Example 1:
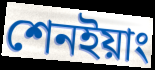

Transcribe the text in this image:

শেনইয়াং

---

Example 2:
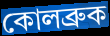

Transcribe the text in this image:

কোলব্রুক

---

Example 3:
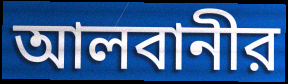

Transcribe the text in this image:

আলবানীর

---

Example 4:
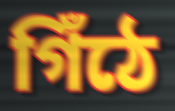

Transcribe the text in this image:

গিঁঠে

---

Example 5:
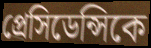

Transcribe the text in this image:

প্রেসিডেন্সিকে